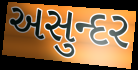
અસુન્દર